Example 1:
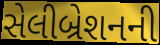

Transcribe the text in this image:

સેલીબ્રેશનની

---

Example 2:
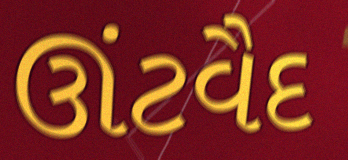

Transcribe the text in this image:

ઊંટવૈદ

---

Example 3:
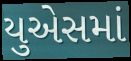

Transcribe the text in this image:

યુએસમાં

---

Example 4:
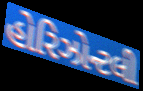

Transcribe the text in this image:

હોરિઝોન્ટલી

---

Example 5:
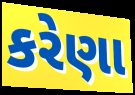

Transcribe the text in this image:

કરેણા